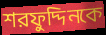
শরফুদ্দিনকে